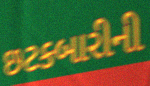
છટકબારીની